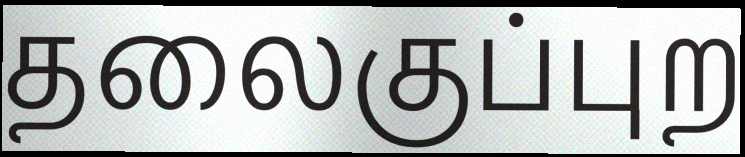
தலைகுப்புற